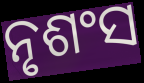
ନୃଶଂସ